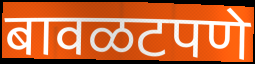
बावळटपणे